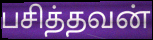
பசித்தவன்